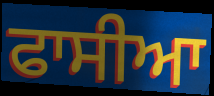
ਫਾਸੀਆ